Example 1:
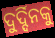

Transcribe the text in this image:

ଦୁର୍ଦ୍ଦିନକୁ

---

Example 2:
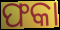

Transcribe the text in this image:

ଫକା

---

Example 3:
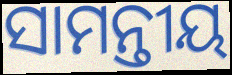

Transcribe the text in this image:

ସାମନ୍ତୀୟ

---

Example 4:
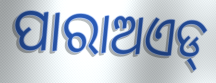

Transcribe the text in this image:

ପାରାଅଏଡ୍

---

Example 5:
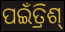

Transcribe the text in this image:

ପଇଁତ୍ରିଶ୍